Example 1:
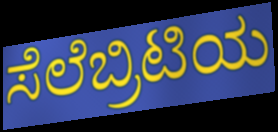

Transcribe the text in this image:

ಸೆಲೆಬ್ರಿಟಿಯ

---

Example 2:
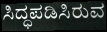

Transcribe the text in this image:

ಸಿದ್ಧಪಡಿಸಿರುವ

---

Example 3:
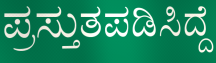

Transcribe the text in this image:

ಪ್ರಸ್ತುತಪಡಿಸಿದ್ದೆ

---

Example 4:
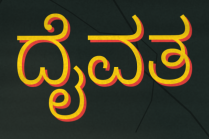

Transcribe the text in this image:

ದೈವತ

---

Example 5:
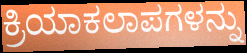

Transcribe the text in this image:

ಕ್ರಿಯಾಕಲಾಪಗಳನ್ನು